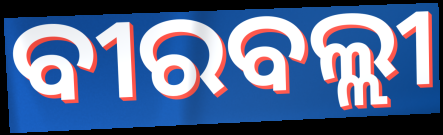
ବୀରବଲ୍ଲୀ